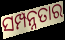
ସମ୍ପନ୍ନତାର